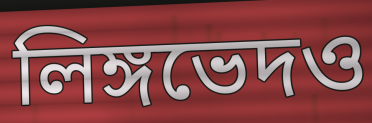
লিঙ্গভেদও